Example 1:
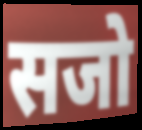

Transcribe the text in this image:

सजो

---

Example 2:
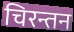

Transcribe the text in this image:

चिरन्तन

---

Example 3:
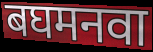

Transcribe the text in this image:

बघमनवा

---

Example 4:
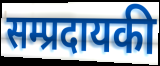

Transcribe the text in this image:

सम्प्रदायकी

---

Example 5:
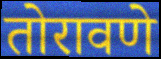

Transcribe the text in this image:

तोरावणे